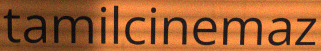
tamilcinemaz